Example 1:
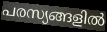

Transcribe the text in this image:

പരസ്യങ്ങളിൽ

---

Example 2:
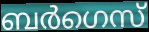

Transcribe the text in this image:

ബർഗെസ്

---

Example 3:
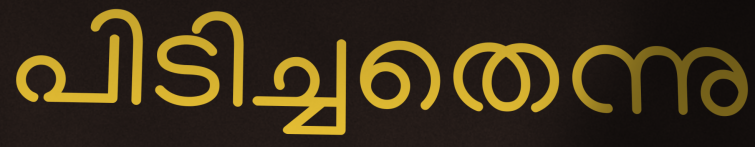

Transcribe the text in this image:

പിടിച്ചതെന്നു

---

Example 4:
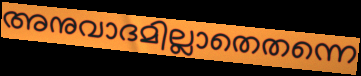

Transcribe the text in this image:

അനുവാദമില്ലാതെതന്നെ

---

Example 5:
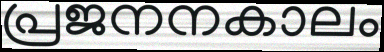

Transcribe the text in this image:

പ്രജനനകാലം